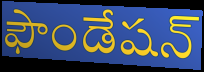
ఫౌండేషన్